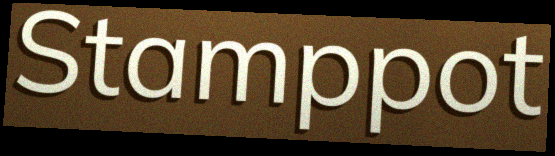
Stamppot